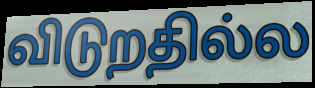
விடுறதில்ல